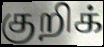
குறிக்